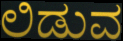
ಲಿಡುವ